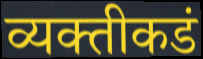
व्यक्तीकडं